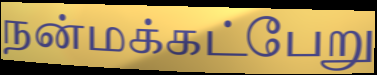
நன்மக்கட்பேறு